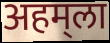
अहम्‌ला